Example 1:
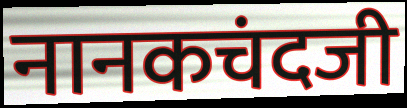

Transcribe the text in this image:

नानकचंदजी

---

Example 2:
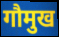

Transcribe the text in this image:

गौमुख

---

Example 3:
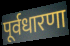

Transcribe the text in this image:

पूर्वधारणा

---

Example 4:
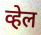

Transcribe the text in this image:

व्हेल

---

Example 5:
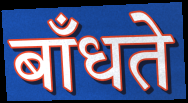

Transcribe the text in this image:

बाँधते